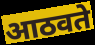
आठवते